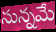
సున్నమే